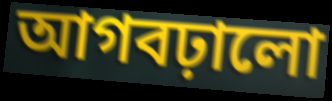
আগবঢ়ালো